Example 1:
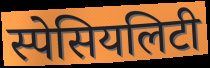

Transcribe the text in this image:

स्पेसियलिटी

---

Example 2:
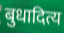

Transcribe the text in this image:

बुधादित्य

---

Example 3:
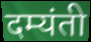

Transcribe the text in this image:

दम्यंती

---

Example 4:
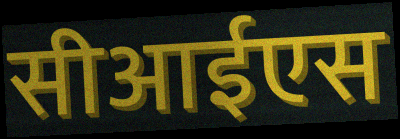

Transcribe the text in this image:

सीआईएस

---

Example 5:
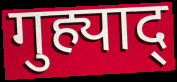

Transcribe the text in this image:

गुह्याद्